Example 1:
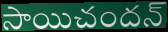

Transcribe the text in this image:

సాయిచందన్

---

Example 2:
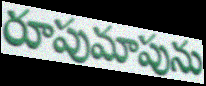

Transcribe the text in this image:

రూపుమాపును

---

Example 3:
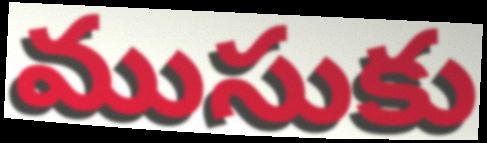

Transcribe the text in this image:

ముసుకు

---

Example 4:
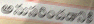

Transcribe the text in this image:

అనుసరించడానికి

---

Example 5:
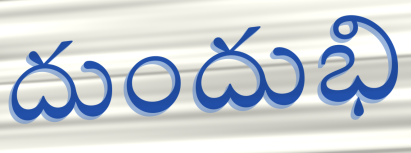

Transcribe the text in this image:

దుందుభి